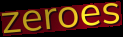
zeroes